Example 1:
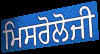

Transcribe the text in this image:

ਮਿਸਰੋਲੋਜੀ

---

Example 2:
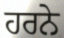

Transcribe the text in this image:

ਹਰਨੇ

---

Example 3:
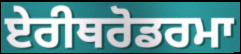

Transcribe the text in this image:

ਏਰੀਥਰੋਡਰਮਾ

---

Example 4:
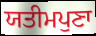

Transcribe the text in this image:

ਯਤੀਮਪੁਣਾ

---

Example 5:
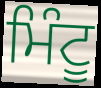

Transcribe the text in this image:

ਮਿੰਟੂ